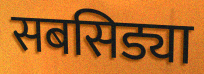
सबसिड्या